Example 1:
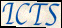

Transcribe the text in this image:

ICTS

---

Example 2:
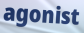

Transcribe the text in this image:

agonist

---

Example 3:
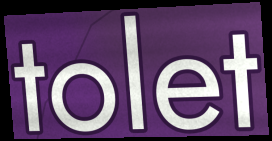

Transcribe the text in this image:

tolet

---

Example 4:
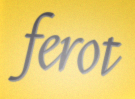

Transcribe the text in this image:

ferot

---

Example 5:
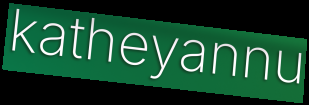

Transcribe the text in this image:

katheyannu